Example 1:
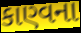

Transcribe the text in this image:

કાણ્વના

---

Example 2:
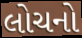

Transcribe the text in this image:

લોચનો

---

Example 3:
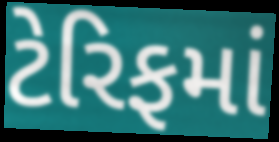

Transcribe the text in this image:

ટેરિફમાં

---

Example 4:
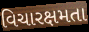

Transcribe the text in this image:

વિચારક્ષમતા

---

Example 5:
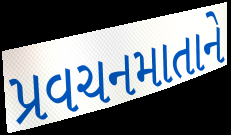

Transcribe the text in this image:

પ્રવચનમાતાને